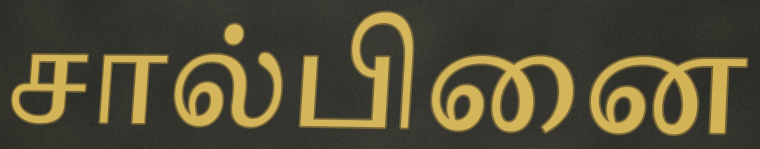
சால்பினை